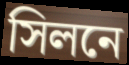
সিলনে